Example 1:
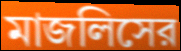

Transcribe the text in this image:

মাজলিসের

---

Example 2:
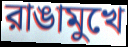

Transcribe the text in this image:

রাঙামুখে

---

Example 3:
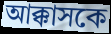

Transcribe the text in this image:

আক্কাসকে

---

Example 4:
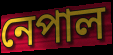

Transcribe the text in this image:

নেপাল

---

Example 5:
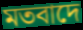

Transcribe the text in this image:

মতবাদে